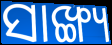
ସାଙ୍ଖ୍ୟ